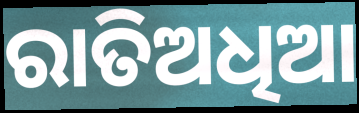
ରାତିଅଧିଆ